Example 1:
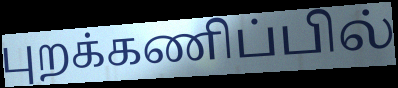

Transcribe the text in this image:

புறக்கணிப்பில்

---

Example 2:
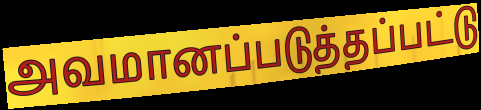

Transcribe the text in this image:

அவமானப்படுத்தப்பட்டு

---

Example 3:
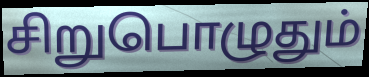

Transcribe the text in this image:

சிறுபொழுதும்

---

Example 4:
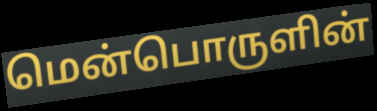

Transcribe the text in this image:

மென்பொருளின்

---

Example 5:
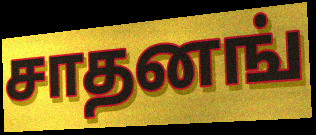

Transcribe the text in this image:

சாதனங்